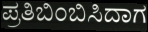
ಪ್ರತಿಬಿಂಬಿಸಿದಾಗ